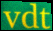
vdt